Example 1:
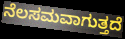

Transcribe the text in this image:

ನೆಲಸಮವಾಗುತ್ತದೆ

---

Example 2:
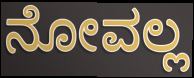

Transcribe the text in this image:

ನೋವಲ್ಲ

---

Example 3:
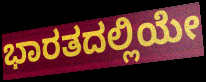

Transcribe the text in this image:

ಭಾರತದಲ್ಲಿಯೇ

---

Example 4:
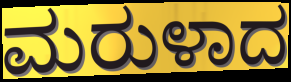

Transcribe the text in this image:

ಮರುಳಾದ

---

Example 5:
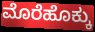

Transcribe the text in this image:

ಮೊರೆಹೊಕ್ಕು